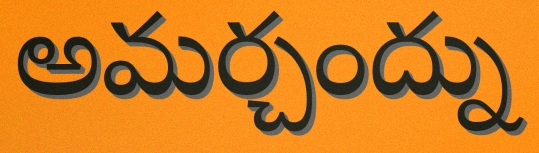
అమర్చంద్ను